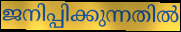
ജനിപ്പിക്കുന്നതിൽ